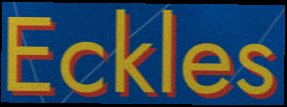
Eckles